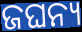
ଜଘନ୍ଯ